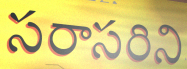
సరాసరిని